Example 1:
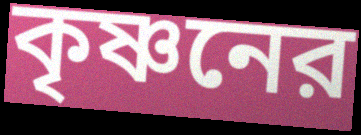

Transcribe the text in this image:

কৃষ্ণনের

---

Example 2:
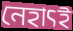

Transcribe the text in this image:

নেহাৎই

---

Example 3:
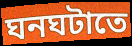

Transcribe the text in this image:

ঘনঘটাতে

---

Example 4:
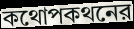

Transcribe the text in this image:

কথোপকথনের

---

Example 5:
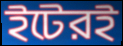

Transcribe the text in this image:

ইটেরই